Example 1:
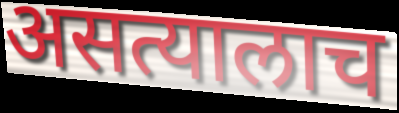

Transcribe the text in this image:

असत्यालाच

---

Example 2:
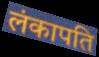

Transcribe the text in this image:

लंकापति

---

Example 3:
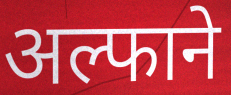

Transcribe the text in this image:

अल्फाने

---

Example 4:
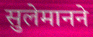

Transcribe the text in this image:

सुलेमानने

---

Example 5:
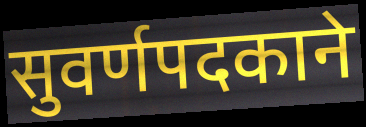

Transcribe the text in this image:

सुवर्णपदकाने